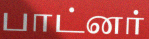
பாட்னர்